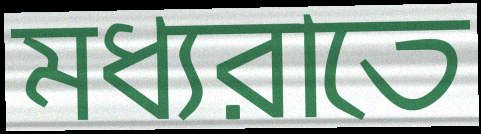
মধ্যরাতে